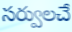
సర్వులచే